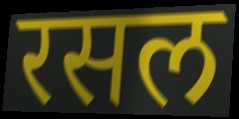
रसल